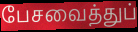
பேசவைத்துப்